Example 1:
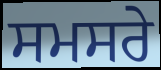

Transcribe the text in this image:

ਸਮਸਰੇ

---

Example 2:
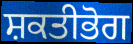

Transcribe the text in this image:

ਸ਼ਕਤੀਭੋਗ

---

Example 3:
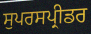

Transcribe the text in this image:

ਸੁਪਰਸਪ੍ਰੀਡਰ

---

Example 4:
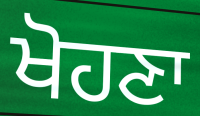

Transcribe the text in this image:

ਖੋਹਣਾ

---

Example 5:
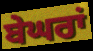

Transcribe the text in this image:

ਬੇਘਰਾਂ